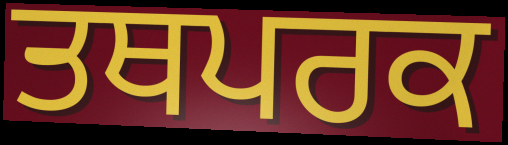
ਤਥਪਰਕ